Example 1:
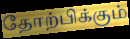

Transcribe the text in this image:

தோற்பிக்கும்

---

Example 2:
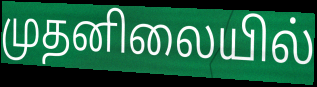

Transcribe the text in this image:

முதனிலையில்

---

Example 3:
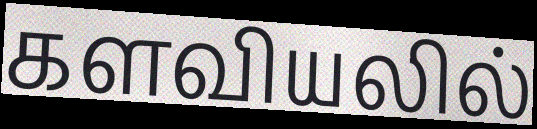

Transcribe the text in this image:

களவியலில்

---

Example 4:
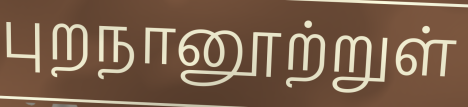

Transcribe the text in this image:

புறநானூற்றுள்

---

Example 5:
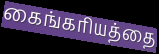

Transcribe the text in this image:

கைங்கரியத்தை